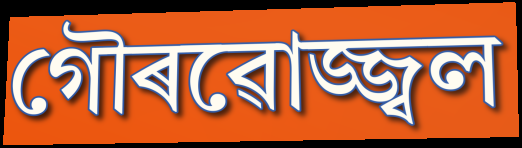
গৌৰৱোজ্জ্বল